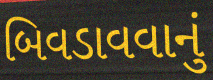
બિવડાવવાનું